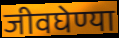
जीवघेण्या